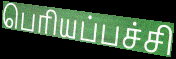
பெரியப்பச்சி